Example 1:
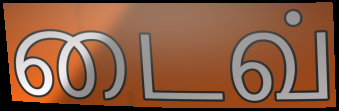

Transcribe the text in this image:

டைவ்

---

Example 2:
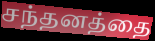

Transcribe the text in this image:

சந்தனத்தை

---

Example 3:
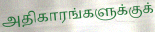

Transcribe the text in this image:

அதிகாரங்களுக்குக்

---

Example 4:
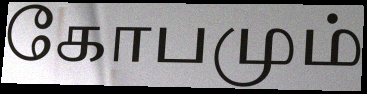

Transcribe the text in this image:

கோபமும்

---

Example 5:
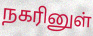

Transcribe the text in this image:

நகரினுள்